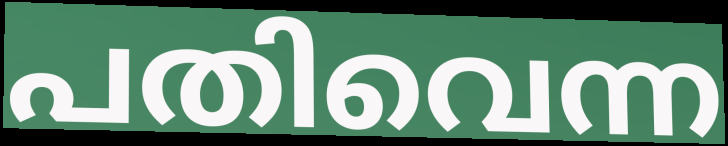
പതിവെന്ന